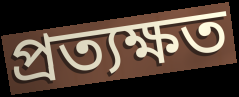
প্রত্যক্ষত